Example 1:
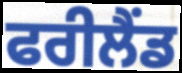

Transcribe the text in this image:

ਫਰੀਲੈਂਡ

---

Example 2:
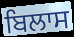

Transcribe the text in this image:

ਬਿਲਾਸ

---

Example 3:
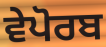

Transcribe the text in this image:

ਵੇਪੋਰਬ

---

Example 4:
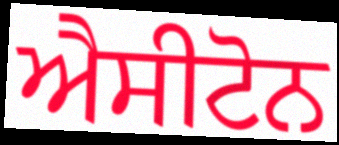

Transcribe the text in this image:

ਐਸੀਟੋਨ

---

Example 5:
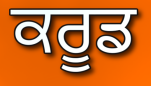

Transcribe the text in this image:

ਕਰੂਡ